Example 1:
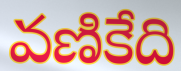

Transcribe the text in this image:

వణికేది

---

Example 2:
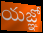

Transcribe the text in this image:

యజ్ఞో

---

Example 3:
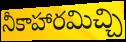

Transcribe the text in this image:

నీకాహారమిచ్చి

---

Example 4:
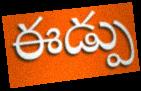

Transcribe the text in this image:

ఈడ్పు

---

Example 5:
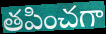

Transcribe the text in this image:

తపించగా